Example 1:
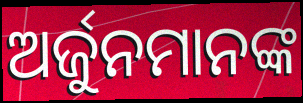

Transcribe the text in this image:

ଅର୍ଜୁନମାନଙ୍କ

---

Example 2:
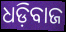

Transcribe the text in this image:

ଧଡ଼ିବାଜ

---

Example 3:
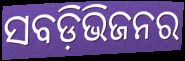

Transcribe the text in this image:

ସବଡ଼ିଭିଜନର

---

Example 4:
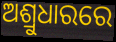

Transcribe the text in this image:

ଅଶ୍ରୁଧାରରେ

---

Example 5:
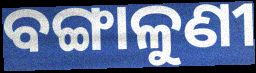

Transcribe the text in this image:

ବଙ୍ଗାଳୁଣୀ